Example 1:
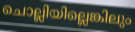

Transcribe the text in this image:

ചൊല്ലിയില്ലെങ്കിലും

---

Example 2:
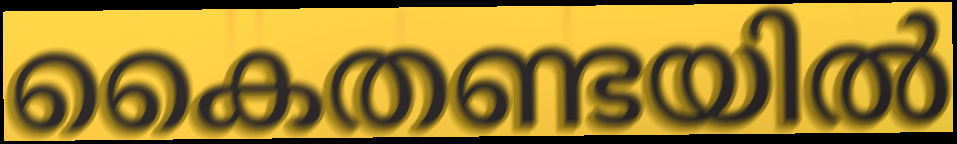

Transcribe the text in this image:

കൈതണ്ടയിൽ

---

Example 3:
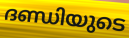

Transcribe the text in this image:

ദണ്ഡിയുടെ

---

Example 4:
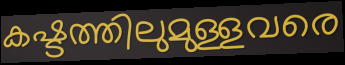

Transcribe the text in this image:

കഷ്ടത്തിലുമുള്ളവരെ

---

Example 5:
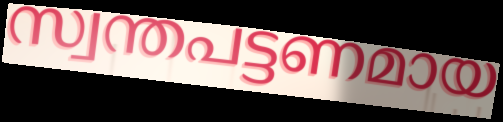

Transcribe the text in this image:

സ്വന്തപട്ടണമായ